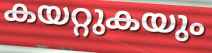
കയറ്റുകയും